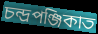
চন্দ্ৰপঞ্জিকাত